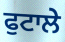
ਫੁਟਾਲੇ